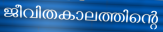
ജീവിതകാലത്തിന്റെ